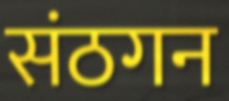
संठगन